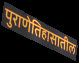
पुराणेतिहासातील